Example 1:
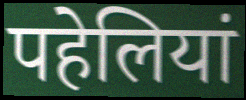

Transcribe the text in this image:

पहेलियां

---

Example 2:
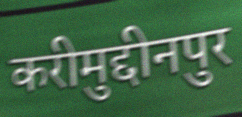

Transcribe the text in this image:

करीमुद्दीनपुर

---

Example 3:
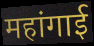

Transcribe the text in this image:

महांगाई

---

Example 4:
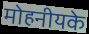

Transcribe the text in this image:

मोहनीयके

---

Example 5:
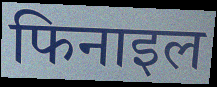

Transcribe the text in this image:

फिनाइल